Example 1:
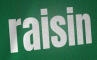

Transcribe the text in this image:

raisin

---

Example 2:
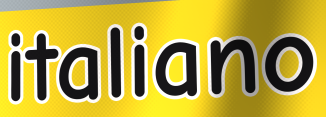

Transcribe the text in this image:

italiano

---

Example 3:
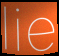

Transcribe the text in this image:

lie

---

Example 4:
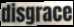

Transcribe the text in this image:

disgrace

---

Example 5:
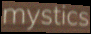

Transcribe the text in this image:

mystics